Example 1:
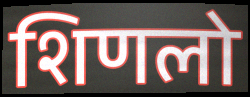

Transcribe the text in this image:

शिणलो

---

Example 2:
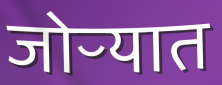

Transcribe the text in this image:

जोऱ्यात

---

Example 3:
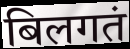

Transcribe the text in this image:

बिलगतं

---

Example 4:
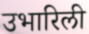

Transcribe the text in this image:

उभारिली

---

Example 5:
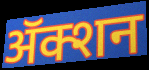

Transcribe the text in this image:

ॲक्शन